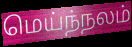
மெய்ந்நலம்